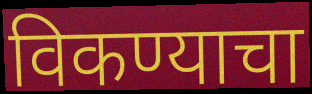
विकण्याचा